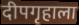
दीपगृहाला